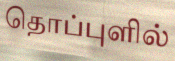
தொப்புளில்